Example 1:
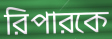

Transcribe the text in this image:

রিপারকে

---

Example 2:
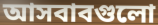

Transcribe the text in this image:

আসবাবগুলো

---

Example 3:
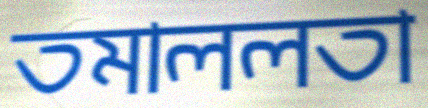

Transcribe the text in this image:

তমাললতা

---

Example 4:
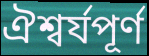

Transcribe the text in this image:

ঐশ্বর্যপূর্ণ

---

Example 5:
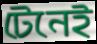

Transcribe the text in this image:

টেনেই